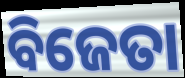
ବିଜେତା